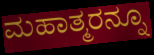
ಮಹಾತ್ಮರನ್ನೂ